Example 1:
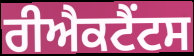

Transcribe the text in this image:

ਰੀਐਕਟੈਂਟਸ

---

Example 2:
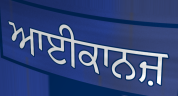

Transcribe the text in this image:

ਆਈਕਾਨਜ਼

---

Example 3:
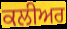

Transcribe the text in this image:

ਕਲੀਅਰ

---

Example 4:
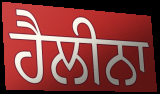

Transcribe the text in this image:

ਹੈਲੀਨਾ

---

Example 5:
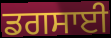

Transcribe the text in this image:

ਡਗਸਾਈ